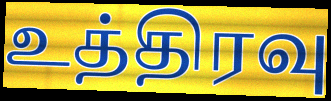
உத்திரவு